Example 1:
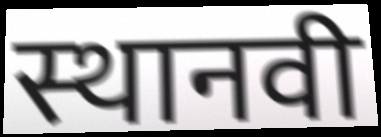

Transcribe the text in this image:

स्थानवी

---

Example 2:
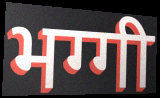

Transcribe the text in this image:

भग्गी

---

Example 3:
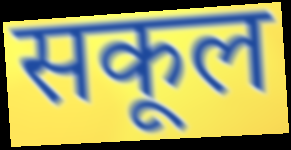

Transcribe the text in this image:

सकूल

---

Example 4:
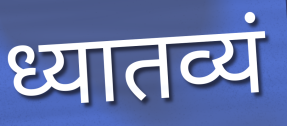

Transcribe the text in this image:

ध्यातव्यं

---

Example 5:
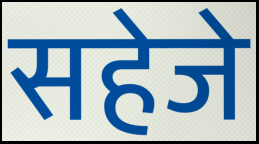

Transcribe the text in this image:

सहेजे